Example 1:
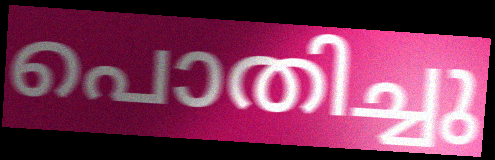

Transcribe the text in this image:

പൊതിച്ചു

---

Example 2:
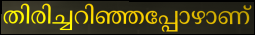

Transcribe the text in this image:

തിരിച്ചറിഞ്ഞപ്പോഴാണ്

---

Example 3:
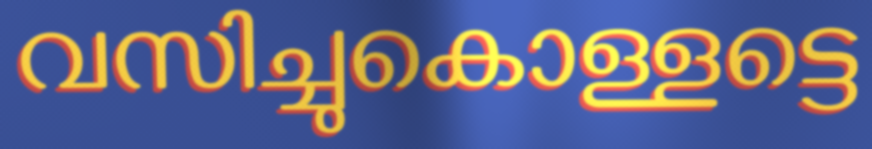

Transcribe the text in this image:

വസിച്ചുകൊള്ളട്ടെ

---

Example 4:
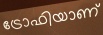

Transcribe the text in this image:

ട്രോഫിയാണ്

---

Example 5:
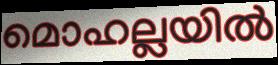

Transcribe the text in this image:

മൊഹല്ലയിൽ